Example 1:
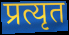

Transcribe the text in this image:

प्रत्यृत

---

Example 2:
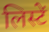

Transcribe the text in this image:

लिस्टें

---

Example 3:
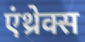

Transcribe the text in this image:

एंथ्रेक्स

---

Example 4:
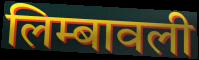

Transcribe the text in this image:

लिम्बावली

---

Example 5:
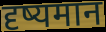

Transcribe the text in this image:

दृष्यमान